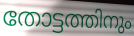
തോട്ടത്തിനും